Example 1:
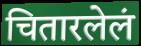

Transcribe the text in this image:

चितारलेलं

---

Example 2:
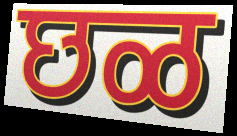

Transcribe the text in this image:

छळ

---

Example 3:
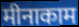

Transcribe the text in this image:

मीनाकाम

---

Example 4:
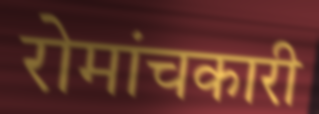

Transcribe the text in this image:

रोमांचकारी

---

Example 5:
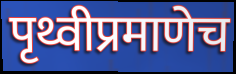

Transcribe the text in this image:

पृथ्वीप्रमाणेच